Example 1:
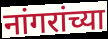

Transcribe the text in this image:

नांगरांच्या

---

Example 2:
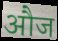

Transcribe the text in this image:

औज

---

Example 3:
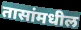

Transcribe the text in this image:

तासांमधील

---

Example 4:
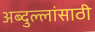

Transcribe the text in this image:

अब्दुल्लांसाठी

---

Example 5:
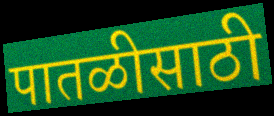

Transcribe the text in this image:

पातळीसाठी